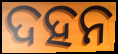
ଦହନ